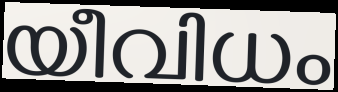
യീവിധം